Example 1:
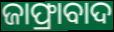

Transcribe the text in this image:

ଜାଫ୍ରାବାଦ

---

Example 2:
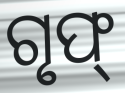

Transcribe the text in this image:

ଗୃଫ୍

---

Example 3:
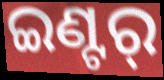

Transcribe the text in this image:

ଇଣ୍ଟର୍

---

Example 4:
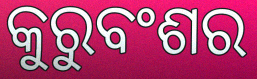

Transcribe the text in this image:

କୁରୁବଂଶର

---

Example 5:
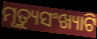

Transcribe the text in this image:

ମୃତ୍ୟୁସଂଖ୍ୟାଟି